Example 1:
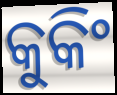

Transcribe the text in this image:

କୁକିଂ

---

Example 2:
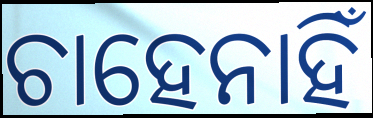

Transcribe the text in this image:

ଚାହେନାହିଁ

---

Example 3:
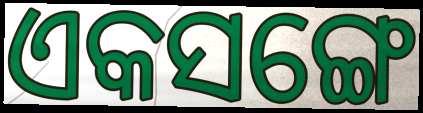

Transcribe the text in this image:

ଏକସଙ୍ଗେ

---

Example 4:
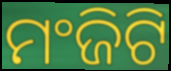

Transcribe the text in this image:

ମଂଜିଟି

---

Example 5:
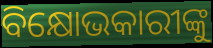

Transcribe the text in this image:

ବିକ୍ଷୋଭକାରୀଙ୍କୁ